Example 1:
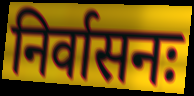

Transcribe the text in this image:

निर्वासनः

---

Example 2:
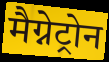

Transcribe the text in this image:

मैग्नेट्रोन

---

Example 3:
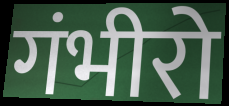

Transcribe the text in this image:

गंभीरो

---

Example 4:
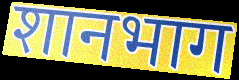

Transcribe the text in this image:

शानभाग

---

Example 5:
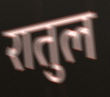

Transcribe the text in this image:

रातुल